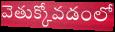
వెతుక్కోవడంలో